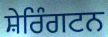
ਸ਼ੇਰਿੰਗਟਨ